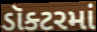
ડૉક્ટરમાં